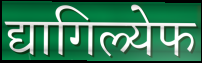
द्यागिल्येफ